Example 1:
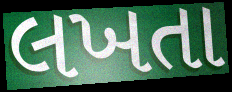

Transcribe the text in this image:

લખતા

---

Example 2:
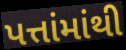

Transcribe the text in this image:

પત્તાંમાંથી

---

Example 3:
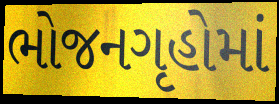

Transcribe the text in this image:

ભોજનગૃહોમાં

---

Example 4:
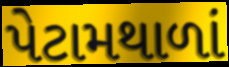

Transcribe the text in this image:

પેટામથાળાં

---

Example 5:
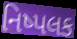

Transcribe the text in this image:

નિષ્પલક